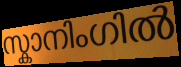
സ്കാനിംഗിൽ